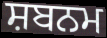
ਸ਼ਬਨਮ